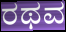
ರಥವ